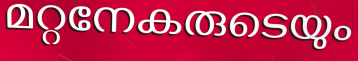
മറ്റനേകരുടെയും